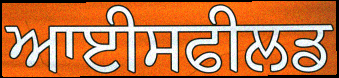
ਆਈਸਫੀਲਡ